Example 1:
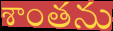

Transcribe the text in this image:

శాంతను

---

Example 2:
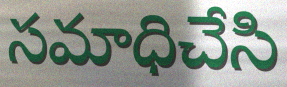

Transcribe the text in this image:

సమాధిచేసి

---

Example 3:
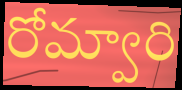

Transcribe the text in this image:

రోమ్వారి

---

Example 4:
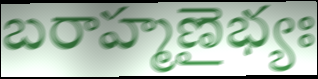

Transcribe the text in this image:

బరాహ్మణైభ్యః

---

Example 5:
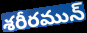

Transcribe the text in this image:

శరీరమున్